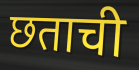
छताची